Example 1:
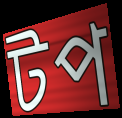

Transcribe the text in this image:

টপ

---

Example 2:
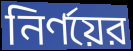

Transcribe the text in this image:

নির্ণয়ের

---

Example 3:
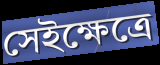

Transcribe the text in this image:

সেইক্ষেত্রে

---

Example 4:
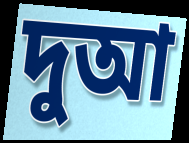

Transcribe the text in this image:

দুআ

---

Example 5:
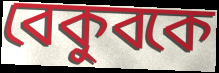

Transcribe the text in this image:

বেকুবকে